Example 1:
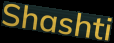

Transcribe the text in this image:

Shashti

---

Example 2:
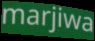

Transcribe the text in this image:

marjiwa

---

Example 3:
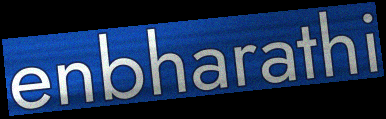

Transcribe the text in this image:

enbharathi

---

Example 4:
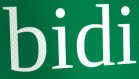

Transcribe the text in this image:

bidi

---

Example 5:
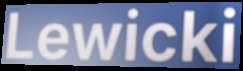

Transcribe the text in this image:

Lewicki